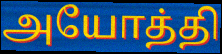
அயோத்தி